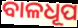
ବାଳଧୂପ